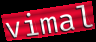
vimal